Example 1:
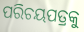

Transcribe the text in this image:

ପରିଚୟପତ୍ରକୁ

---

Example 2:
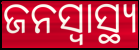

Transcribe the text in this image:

ଜନସ୍ବାସ୍ଥ୍ୟ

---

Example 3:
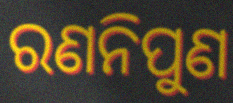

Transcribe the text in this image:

ରଣନିପୁଣ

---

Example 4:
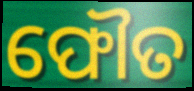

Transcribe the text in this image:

ଫୌତ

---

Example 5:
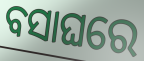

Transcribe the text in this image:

ବସାଘରେ